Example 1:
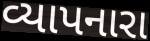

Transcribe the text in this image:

વ્યાપનારા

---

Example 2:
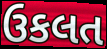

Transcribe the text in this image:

ઉકલત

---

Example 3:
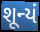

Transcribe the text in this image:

શૂન્યં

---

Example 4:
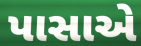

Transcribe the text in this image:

પાસાએ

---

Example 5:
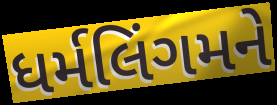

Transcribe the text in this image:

ધર્મલિંગમને